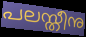
പലസ്തീനു